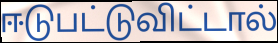
ஈடுபட்டுவிட்டால்